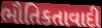
ભૌતિકતાવાદી